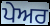
ਪੇਅਰ